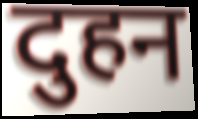
दुहन